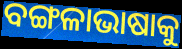
ବଙ୍ଗଳାଭାଷାକୁ